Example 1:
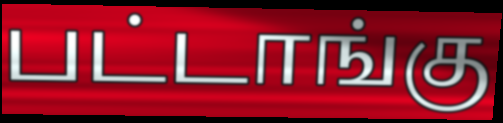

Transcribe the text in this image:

பட்டாங்கு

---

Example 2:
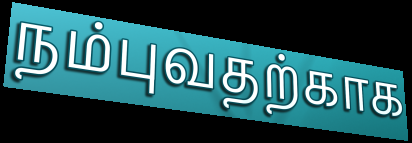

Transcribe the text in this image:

நம்புவதற்காக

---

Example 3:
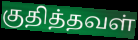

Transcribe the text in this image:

குதித்தவள்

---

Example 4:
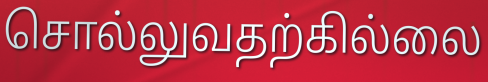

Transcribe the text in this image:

சொல்லுவதற்கில்லை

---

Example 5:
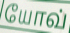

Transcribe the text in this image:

யோவ்